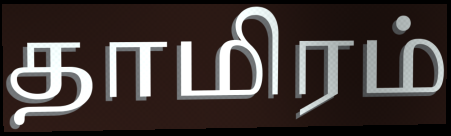
தாமிரம்